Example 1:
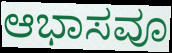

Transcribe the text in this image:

ಆಭಾಸವೂ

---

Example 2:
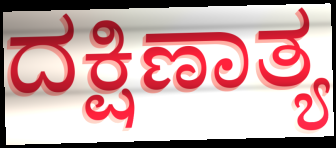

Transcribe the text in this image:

ದಕ್ಷಿಣಾತ್ಯ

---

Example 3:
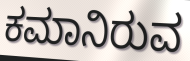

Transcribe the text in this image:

ಕಮಾನಿರುವ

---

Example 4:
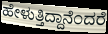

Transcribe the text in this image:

ಹೇಳುತ್ತಿದ್ದಾನೆಂದರೆ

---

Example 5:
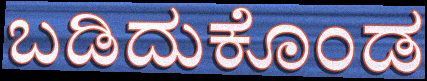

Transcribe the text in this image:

ಬಡಿದುಕೊಂಡ